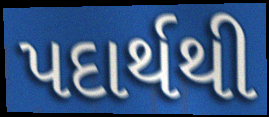
પદાર્થથી